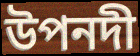
উপনদী